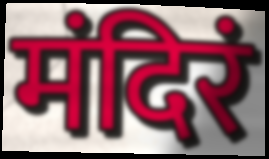
मंदिरं